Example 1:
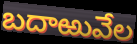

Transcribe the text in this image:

బదాఱువేల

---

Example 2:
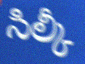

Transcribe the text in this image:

సిల్కీ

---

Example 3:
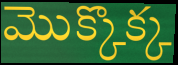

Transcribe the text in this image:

మొక్కొక్క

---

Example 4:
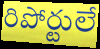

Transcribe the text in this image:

రిపోర్టులే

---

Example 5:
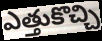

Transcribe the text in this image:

ఎత్తుకొచ్చి